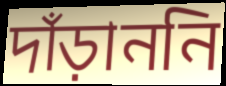
দাঁড়াননি